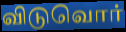
விடுவொர்